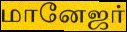
மானேஜர்